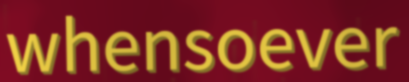
whensoever